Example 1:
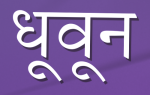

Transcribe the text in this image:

धूवून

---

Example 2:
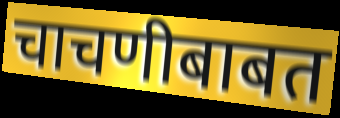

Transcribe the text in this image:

चाचणीबाबत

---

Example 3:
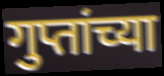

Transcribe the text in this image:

गुप्तांच्या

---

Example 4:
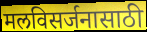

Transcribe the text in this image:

मलविसर्जनासाठी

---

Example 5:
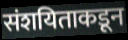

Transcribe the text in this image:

संशयिताकडून